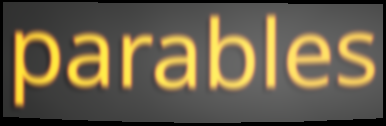
parables